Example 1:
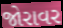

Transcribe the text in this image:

જોરાવર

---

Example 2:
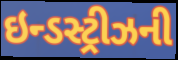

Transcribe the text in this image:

ઇન્ડસ્ટ્રીઝની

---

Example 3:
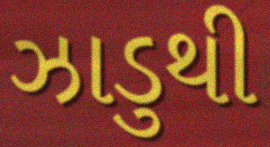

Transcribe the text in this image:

ઝાડુથી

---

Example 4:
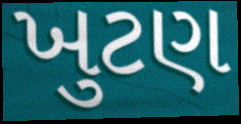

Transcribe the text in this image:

ખુટણ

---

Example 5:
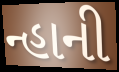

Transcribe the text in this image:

ન્હાની